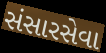
સંસારસેવા